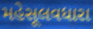
મહેસૂલવધારા